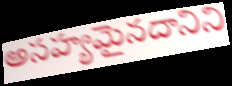
అసహ్యమైనదానిని